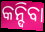
କନ୍ଦିବା